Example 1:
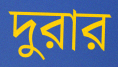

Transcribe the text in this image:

দুরার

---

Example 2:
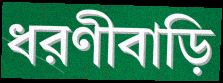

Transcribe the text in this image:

ধরণীবাড়ি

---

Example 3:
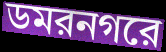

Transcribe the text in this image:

ডমরনগরে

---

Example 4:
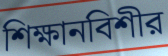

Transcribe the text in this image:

শিক্ষানবিশীর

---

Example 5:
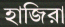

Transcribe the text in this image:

হাজিরা